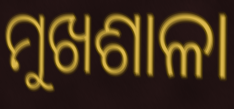
ମୁଖଶାଳା